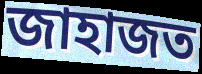
জাহাজত